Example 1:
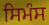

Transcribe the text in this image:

ਸਿਮੰਸ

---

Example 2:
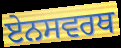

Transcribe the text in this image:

ਏਨਸਵਰਥ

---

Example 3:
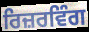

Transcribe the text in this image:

ਰਿਜ਼ਰਵਿੰਗ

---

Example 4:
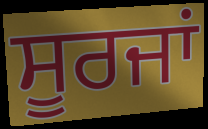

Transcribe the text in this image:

ਸੂਰਜਾਂ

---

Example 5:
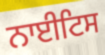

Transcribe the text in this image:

ਨਾਈਟਿਸ